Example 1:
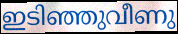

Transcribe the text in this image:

ഇടിഞ്ഞുവീണു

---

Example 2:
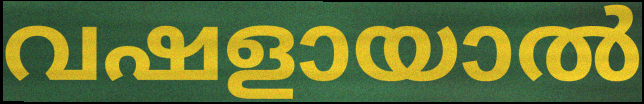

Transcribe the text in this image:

വഷളായാൽ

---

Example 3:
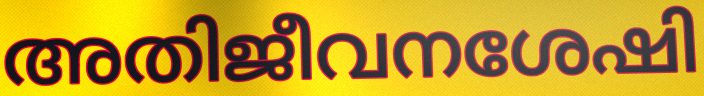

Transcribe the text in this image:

അതിജീവനശേഷി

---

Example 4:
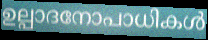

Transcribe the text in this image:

ഉല്പാദനോപാധികൾ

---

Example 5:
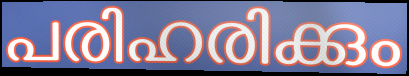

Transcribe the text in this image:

പരിഹരിക്കും